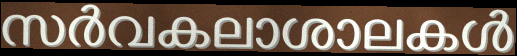
സർവകലാശാലകൾ